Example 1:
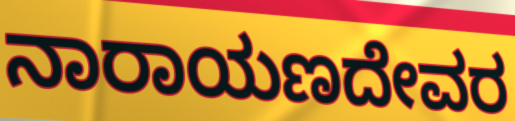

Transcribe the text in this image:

ನಾರಾಯಣದೇವರ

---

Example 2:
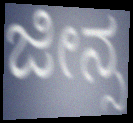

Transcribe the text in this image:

ಜೀನ್ಸ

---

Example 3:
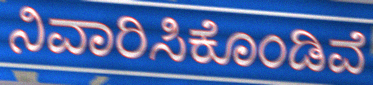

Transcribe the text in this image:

ನಿವಾರಿಸಿಕೊಂಡಿವೆ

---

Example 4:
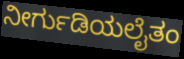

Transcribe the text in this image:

ನೀರ್ಗುಡಿಯಲೈತಂ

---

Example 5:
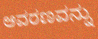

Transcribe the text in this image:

ಆವರಣವನ್ನು